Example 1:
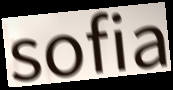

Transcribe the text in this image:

sofia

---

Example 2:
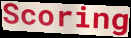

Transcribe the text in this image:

Scoring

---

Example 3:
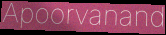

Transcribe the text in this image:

Apoorvanand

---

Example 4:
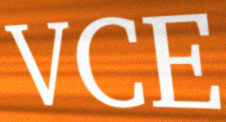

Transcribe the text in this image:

VCE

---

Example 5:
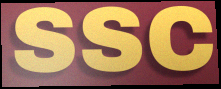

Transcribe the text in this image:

SSC